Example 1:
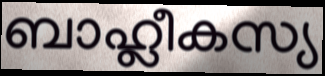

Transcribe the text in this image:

ബാഹ്ലീകസ്യ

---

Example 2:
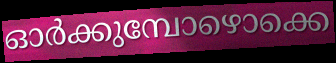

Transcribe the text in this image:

ഓർക്കുമ്പോഴൊക്കെ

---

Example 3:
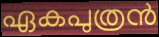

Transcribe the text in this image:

ഏകപുത്രൻ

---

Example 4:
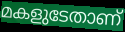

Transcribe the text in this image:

മകളുടേതാണ്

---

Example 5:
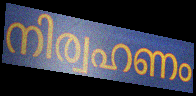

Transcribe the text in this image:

നിര്വഹണം